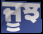
ਜੂਝ